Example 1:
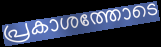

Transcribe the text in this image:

പ്രകാശത്തോടെ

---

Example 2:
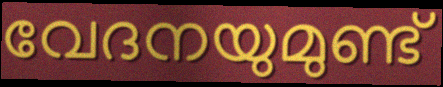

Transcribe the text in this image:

വേദനയുമുണ്ട്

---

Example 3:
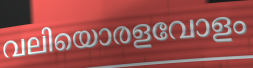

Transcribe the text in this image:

വലിയൊരളവോളം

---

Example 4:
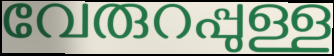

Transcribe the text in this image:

വേരുറപ്പുള്ള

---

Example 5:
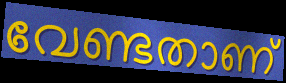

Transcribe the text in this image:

വേണ്ടതാണ്